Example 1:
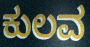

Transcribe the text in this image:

ಕುಲವ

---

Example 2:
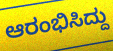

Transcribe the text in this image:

ಆರಂಭಿಸಿದ್ದು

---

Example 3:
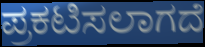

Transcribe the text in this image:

ಪ್ರಕಟಿಸಲಾಗದೆ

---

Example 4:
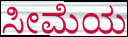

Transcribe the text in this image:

ಸೀಮೆಯ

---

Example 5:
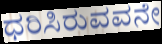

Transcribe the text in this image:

ಧರಿಸಿರುವವನೇ